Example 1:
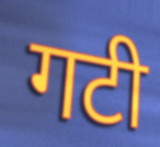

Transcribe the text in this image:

गटी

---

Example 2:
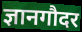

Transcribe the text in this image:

ज्ञानगौदर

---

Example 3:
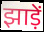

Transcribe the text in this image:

झाड़ें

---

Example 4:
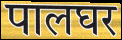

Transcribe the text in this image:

पालघर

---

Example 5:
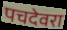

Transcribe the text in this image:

पचदेवरा